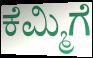
ಕೆಮ್ಮಿಗೆ